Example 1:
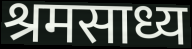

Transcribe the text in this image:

श्रमसाध्य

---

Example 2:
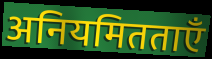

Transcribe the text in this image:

अनियमितताएँ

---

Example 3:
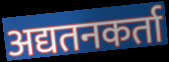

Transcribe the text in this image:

अद्यतनकर्ता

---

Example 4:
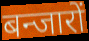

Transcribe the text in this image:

बन्जारों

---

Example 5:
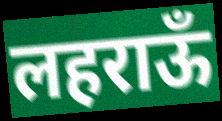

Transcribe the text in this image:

लहराऊँ